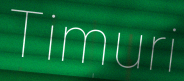
Timuri